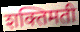
शक्तिमती